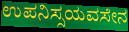
ಉಪನಿಸ್ಸಯವಸೇನ